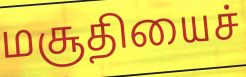
மசூதியைச்